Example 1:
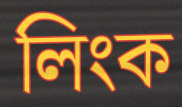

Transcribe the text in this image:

লিংক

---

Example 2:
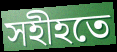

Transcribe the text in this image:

সহীহতে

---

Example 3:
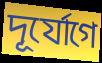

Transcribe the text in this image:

দূর্যোগে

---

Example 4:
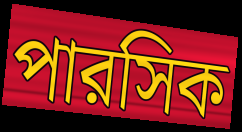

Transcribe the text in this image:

পারসিক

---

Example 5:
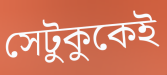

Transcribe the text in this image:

সেটুকুকেই